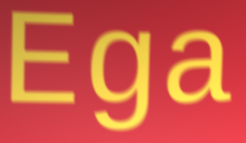
Ega